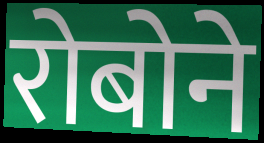
रोबोने